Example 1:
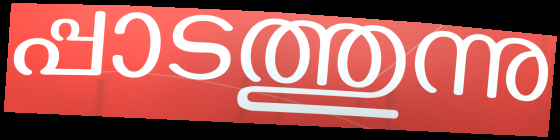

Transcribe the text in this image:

പ്പാടത്തുന്നു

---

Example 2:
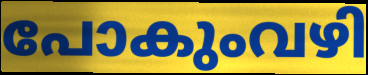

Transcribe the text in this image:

പോകുംവഴി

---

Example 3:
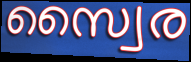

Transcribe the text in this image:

സ്വൈര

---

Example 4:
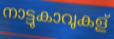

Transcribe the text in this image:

നാട്ടുകാവുകള്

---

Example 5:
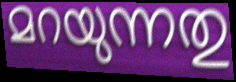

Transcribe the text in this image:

മറയുന്നതു